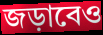
জড়াবেও